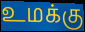
உமக்கு